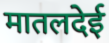
मातलदेई